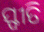
ସ୍ଫୀତି